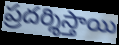
ప్రదర్శిస్తాయి